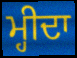
ਮ੍ਹੀਦਾ